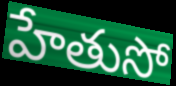
హేతుసో